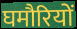
घमौरियों